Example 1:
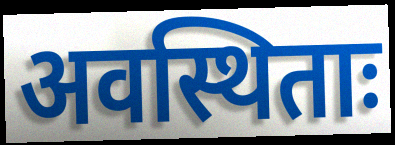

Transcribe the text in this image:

अवस्थिताः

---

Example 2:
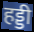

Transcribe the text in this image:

हड्डी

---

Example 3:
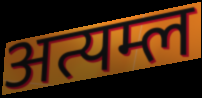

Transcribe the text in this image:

अत्यम्ल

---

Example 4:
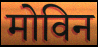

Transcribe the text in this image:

मोविन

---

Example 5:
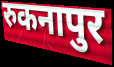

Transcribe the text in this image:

रुकनापुर